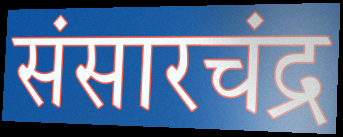
संसारचंद्र